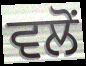
ਵਲੋਂ